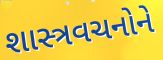
શાસ્ત્રવચનોને